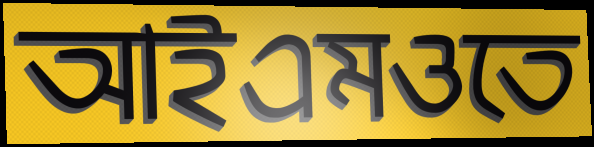
আইএমওতে